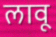
लावू